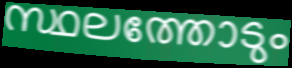
സ്ഥലത്തോടും